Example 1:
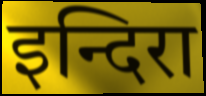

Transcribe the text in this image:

इन्दिरा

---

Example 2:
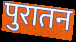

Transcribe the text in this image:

पुरातन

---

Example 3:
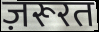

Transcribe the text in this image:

ज़रूरत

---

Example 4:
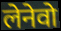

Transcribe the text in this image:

लेनेवो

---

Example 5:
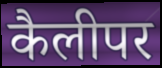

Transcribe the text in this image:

कैलीपर